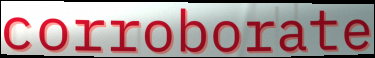
corroborate